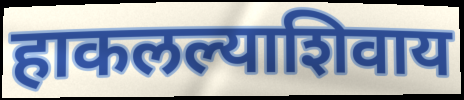
हाकलल्याशिवाय